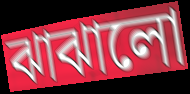
ঝাঝালো